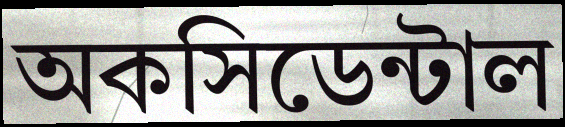
অকসিডেন্টাল